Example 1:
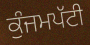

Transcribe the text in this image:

ਕੁੰਜਮਪੱਟੀ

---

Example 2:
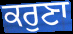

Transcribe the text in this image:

ਕਰੁਣਾ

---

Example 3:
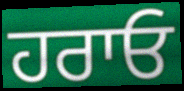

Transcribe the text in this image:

ਹਰਾਓ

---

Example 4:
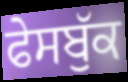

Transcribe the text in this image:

ਫੇਸਬੁੱਕ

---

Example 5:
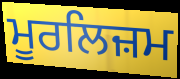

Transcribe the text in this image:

ਮੂਰਲਿਜ਼ਮ